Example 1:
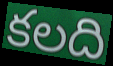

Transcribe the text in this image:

కలది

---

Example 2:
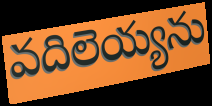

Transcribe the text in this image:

వదిలెయ్యను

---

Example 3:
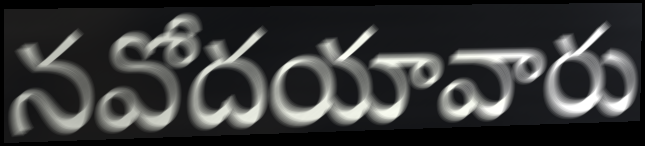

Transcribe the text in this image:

నవోదయావారు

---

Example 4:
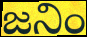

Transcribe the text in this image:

జనిం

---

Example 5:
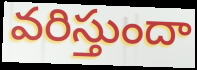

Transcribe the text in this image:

వరిస్తుందా